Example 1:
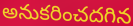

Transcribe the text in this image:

అనుకరించదగిన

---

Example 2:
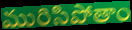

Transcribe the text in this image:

మురిసిపోతాం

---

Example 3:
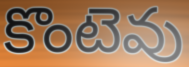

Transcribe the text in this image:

కొంటెవు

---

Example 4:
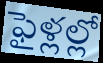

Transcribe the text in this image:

ఫైళ్లల్లో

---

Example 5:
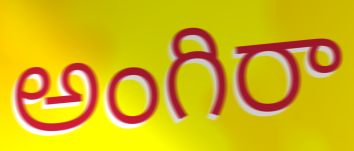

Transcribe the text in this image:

అంగిరా